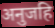
अनुजहि